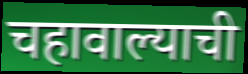
चहावाल्याची